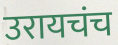
उरायचंच